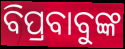
ବିପ୍ରବାବୁଙ୍କ